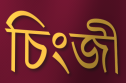
চিংজী